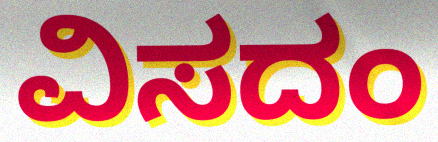
ವಿಸದಂ